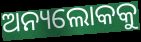
ଅନ୍ୟଲୋକକୁ